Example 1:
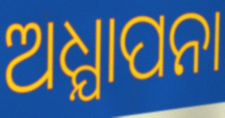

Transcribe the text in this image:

ଅଧ୍ଯାପନା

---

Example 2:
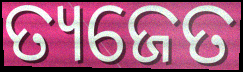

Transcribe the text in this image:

ତ୍ୟଜେତ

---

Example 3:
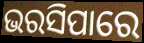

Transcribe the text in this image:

ଭରସିପାରେ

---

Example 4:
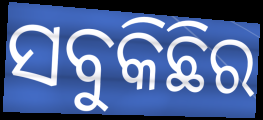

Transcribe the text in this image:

ସବୁକିଛିର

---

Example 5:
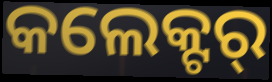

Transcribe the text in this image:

କଲେକ୍ଟର୍